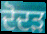
ਦੋਦੜ